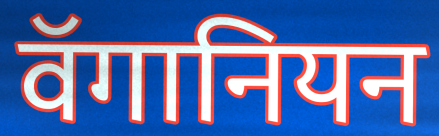
वॅगानियन